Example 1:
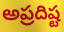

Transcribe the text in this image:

అప్రదిష్ట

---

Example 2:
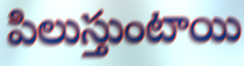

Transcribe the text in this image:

పిలుస్తుంటాయి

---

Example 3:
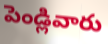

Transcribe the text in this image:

పెండ్లివారు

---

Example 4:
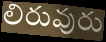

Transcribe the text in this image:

లిరువురు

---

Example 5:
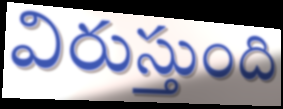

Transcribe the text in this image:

విరుస్తుంది